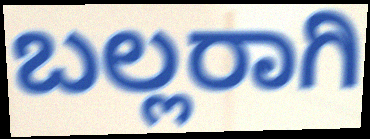
ಬಲ್ಲರಾಗಿ